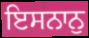
ਇਸਨਾਨੁ